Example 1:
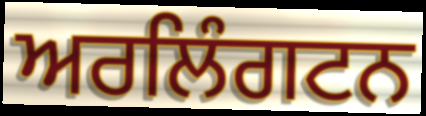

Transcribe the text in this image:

ਅਰਲਿੰਗਟਨ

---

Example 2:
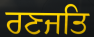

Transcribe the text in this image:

ਰਣਜਤਿ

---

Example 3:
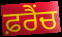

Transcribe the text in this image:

ਫ਼ਰੈਂਚ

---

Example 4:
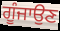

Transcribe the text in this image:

ਗੂੰਜਾਉਣ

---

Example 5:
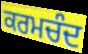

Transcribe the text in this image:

ਕਰਮਚੰਦ